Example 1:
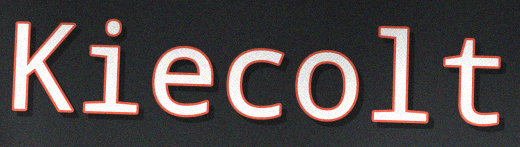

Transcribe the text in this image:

Kiecolt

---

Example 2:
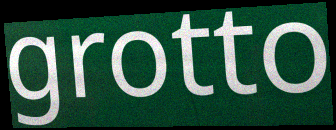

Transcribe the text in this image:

grotto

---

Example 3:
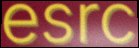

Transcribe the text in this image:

esrc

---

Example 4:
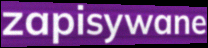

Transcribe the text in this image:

zapisywane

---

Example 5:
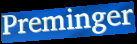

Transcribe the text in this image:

Preminger